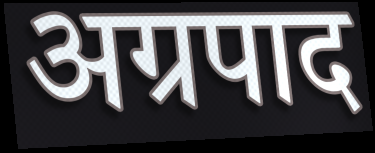
अग्रपाद